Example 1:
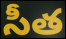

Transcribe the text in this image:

సీత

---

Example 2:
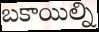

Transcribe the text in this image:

బకాయిల్ని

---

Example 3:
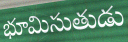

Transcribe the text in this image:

భూమిసుతుడు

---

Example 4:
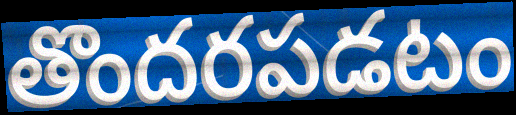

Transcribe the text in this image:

తొందరపడటం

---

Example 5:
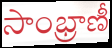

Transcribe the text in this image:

సాంభ్రాణీ